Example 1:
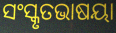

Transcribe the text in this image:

ସଂସ୍କୃତଭାଷୟା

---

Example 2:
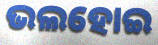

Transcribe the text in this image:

ଭଲହୋଇ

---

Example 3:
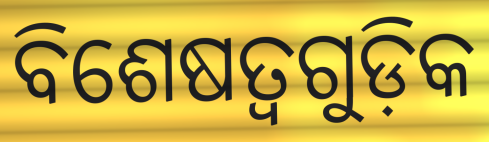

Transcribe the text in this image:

ବିଶେଷତ୍ୱଗୁଡ଼ିକ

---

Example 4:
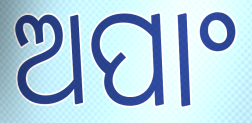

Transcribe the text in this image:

ଅପାଂ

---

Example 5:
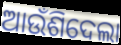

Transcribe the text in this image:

ଆଉଁଶିଦେଲା